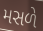
મસળે